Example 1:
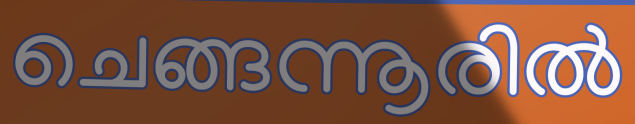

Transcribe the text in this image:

ചെങ്ങന്നൂരിൽ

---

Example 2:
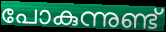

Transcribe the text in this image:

പോകുന്നുണ്ട്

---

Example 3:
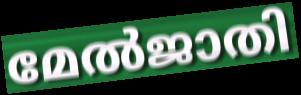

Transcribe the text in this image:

മേൽജാതി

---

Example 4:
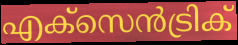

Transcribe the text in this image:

എക്സെൻട്രിക്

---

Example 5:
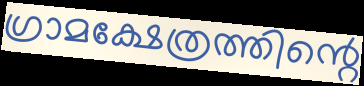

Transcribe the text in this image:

ഗ്രാമക്ഷേത്രത്തിന്റെ